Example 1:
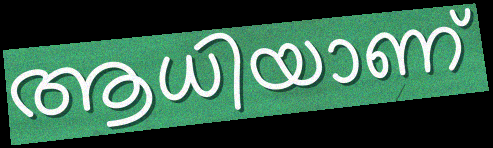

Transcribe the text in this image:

ആധിയാണ്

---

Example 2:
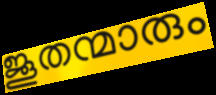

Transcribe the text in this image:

ജൂതന്മാരും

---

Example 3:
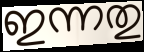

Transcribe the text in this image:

ഇന്നതു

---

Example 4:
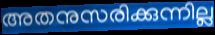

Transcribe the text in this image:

അതനുസരിക്കുന്നില്ല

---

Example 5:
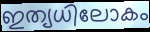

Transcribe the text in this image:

ഇത്യധിലോകം